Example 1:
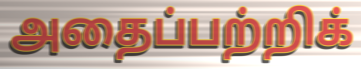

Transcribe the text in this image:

அதைப்பற்றிக்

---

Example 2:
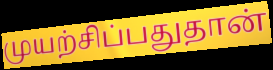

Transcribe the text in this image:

முயற்சிப்பதுதான்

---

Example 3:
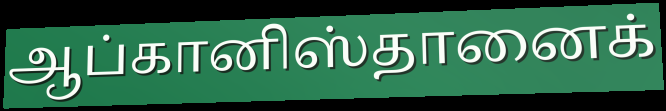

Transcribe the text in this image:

ஆப்கானிஸ்தானைக்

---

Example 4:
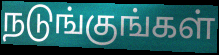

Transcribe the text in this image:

நடுங்குங்கள்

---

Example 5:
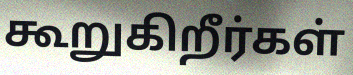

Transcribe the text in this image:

கூறுகிறீர்கள்